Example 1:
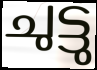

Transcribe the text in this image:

ചുട്ടു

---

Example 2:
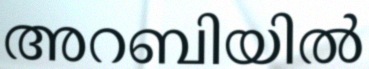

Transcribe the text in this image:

അറബിയിൽ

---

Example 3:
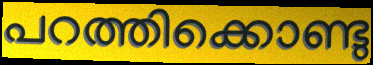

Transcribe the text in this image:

പറത്തിക്കൊണ്ടു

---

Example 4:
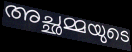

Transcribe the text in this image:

അച്ഛമ്മയുടെ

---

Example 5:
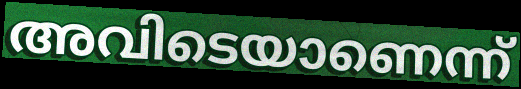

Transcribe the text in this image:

അവിടെയാണെന്ന്